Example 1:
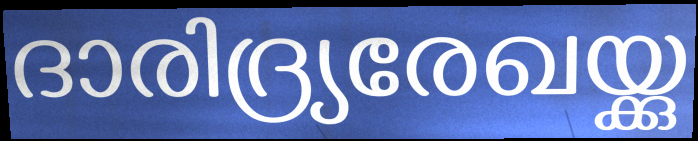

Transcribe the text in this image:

ദാരിദ്ര്യരേഖയ്ക്കു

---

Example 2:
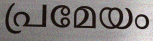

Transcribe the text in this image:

പ്രമേയം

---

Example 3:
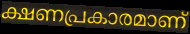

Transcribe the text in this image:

ക്ഷണപ്രകാരമാണ്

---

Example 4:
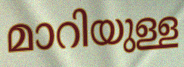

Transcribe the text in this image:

മാറിയുള്ള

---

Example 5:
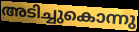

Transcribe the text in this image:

അടിച്ചുകൊന്നു